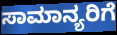
ಸಾಮಾನ್ಯರಿಗೆ